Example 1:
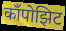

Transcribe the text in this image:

काँपोझिट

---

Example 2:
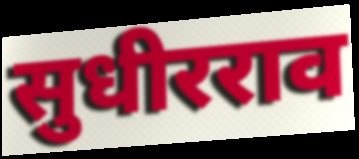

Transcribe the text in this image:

सुधीरराव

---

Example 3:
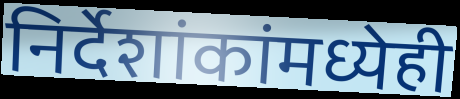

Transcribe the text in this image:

निर्देशांकांमध्येही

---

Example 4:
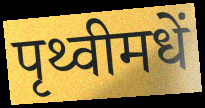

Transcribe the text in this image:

पृथ्वीमधें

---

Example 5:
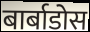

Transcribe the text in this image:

बार्बाडोस